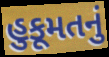
હુકૂમતનું